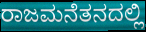
ರಾಜಮನೆತನದಲ್ಲಿ